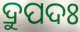
ଦ୍ରୁପଦଃ